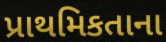
પ્રાથમિકતાના